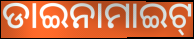
ଡାଇନାମାଇଟ୍